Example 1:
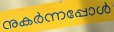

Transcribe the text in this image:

നുകർന്നപ്പോൾ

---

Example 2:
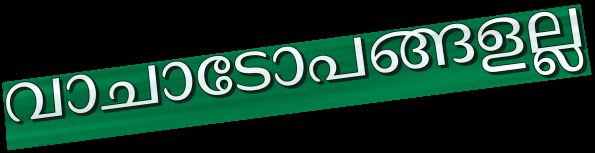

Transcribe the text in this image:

വാചാടോപങ്ങളല്ല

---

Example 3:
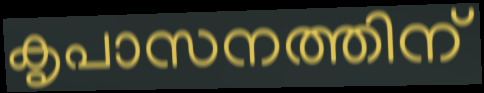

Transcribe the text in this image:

കൃപാസനത്തിന്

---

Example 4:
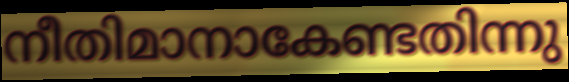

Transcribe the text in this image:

നീതിമാനാകേണ്ടതിന്നു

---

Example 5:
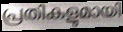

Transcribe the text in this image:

പ്രതികളുമായി